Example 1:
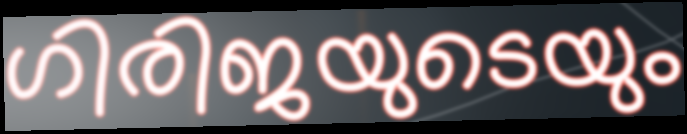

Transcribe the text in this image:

ഗിരിജയുടെയും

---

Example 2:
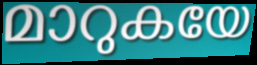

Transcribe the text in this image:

മാറുകയേ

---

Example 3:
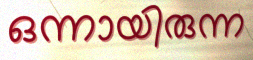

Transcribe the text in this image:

ഒന്നായിരുന്ന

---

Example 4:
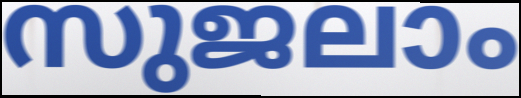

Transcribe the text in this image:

സുജലാം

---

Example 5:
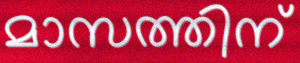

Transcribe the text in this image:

മാസത്തിന്